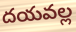
దయవల్ల